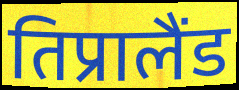
तिप्रालैंड